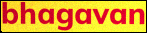
bhagavan